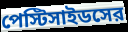
পেস্টিসাইডসের